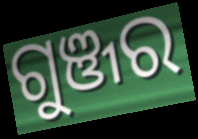
ଗୁଞ୍ଜର